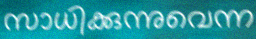
സാധിക്കുന്നുവെന്ന